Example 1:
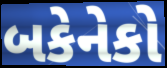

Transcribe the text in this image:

બકેનેકો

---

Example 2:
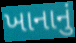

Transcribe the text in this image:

ખાનાનું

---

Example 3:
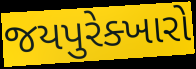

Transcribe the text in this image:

જયપુરેક્ખારો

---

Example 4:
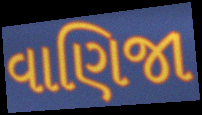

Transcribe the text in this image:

વાણિજા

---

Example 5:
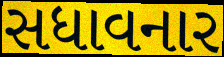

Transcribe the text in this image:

સધાવનાર